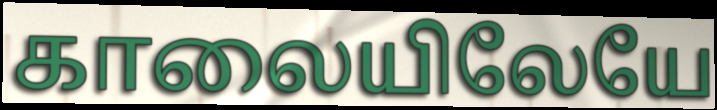
காலையிலேயே